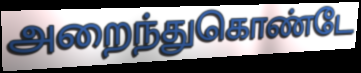
அறைந்துகொண்டே